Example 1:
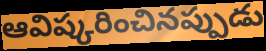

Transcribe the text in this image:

ఆవిష్కరించినప్పుడు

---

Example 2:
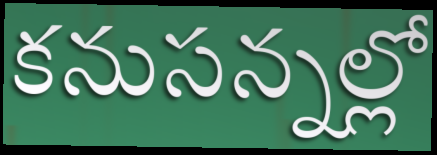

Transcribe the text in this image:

కనుసన్నల్లో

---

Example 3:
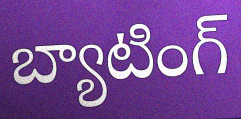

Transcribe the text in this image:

బ్యాటింగ్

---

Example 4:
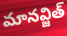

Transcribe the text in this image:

మానవ్జిత్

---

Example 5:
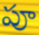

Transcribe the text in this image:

పూ